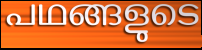
പഥങ്ങളുടെ